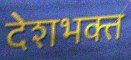
देशभक्त